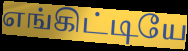
எங்கிட்டியே